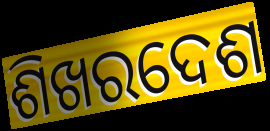
ଶିଖରଦେଶ